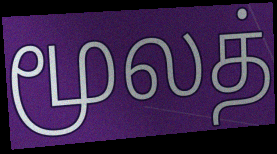
மூலத்